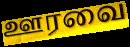
ஊரவை